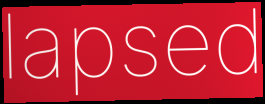
lapsed